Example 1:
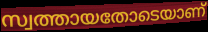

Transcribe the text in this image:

സ്വത്തായതോടെയാണ്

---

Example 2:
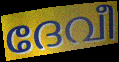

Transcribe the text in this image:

ദേവീ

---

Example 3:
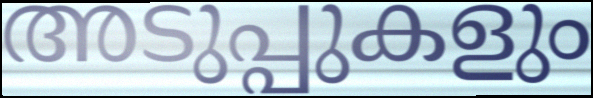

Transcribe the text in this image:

അടുപ്പുകളും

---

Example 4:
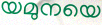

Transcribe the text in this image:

യമുനയെ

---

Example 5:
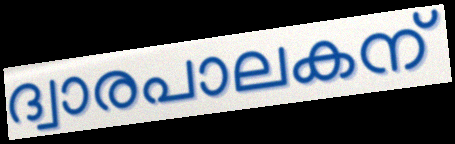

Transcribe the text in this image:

ദ്വാരപാലകന്